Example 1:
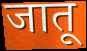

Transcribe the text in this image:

जातू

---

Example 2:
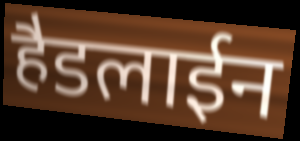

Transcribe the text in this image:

हैडलाईन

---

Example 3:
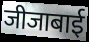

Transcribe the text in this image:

जीजाबाई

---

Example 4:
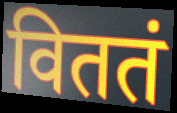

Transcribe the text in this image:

विततं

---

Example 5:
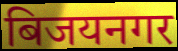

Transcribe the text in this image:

बिजयनगर